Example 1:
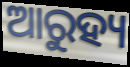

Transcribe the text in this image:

ଆରୁହ୍ୟ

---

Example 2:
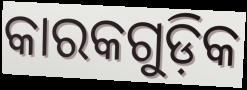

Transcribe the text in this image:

କାରକଗୁଡ଼ିକ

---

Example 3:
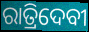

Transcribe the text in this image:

ରାତ୍ରିଦେବୀ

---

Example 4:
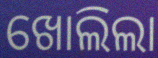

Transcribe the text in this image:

ଖୋଲିଲା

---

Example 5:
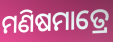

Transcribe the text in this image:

ମଣିଷମାତ୍ରେ